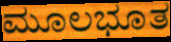
ಮೂಲಭೂತ